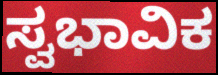
ಸ್ವಭಾವಿಕ